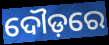
ଦୌଡ଼ରେ